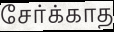
சேர்க்காத